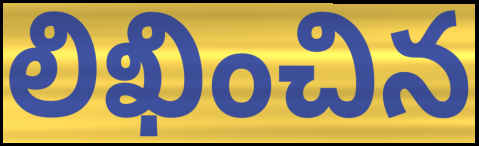
లిఖించిన